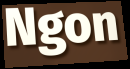
Ngon